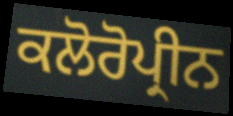
ਕਲੋਰੋਪ੍ਰੀਨ